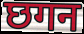
छगन